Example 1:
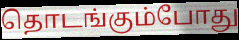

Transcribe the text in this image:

தொடங்கும்போது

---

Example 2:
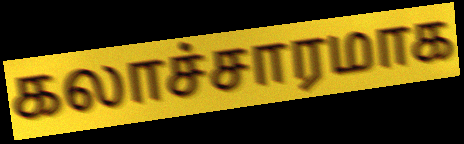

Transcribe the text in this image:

கலாச்சாரமாக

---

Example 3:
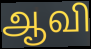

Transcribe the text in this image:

ஆவி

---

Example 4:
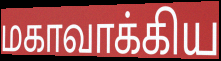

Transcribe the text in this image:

மகாவாக்கிய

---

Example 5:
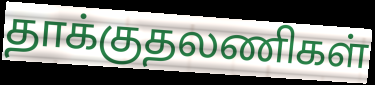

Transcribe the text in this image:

தாக்குதலணிகள்